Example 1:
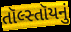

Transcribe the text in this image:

તૉલ્સ્તૉયનું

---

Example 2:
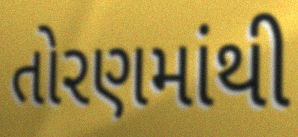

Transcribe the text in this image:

તોરણમાંથી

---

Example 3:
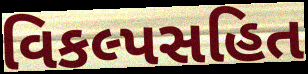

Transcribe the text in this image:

વિકલ્પસહિત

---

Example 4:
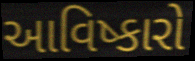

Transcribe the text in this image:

આવિષ્કારો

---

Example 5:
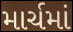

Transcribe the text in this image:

માર્ચમાં